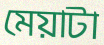
মেয়াটা